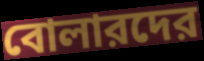
বোলারদের